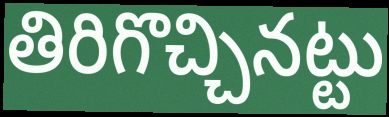
తిరిగొచ్చినట్టు